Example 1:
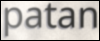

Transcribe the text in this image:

patan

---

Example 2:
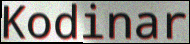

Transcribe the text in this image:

Kodinar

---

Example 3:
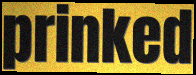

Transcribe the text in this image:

prinked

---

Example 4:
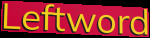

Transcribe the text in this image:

Leftword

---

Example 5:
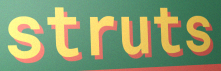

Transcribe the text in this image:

struts